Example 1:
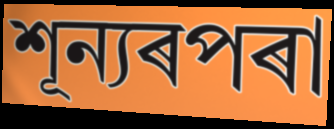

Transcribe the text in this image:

শূন্যৰপৰা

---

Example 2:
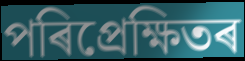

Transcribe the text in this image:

পৰিপ্ৰেক্ষিতৰ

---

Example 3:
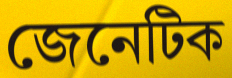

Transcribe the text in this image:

জেনেটিক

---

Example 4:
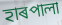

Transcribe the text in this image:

হাৰপালা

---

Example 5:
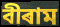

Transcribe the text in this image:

বীৰাম